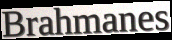
Brahmanes